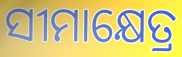
ସୀମାକ୍ଷେତ୍ର